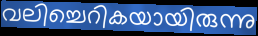
വലിച്ചെറികയായിരുന്നു